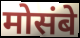
मोसंबे